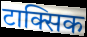
टाक्सिक